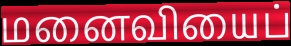
மனைவியைப்